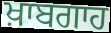
ਖ਼ਾਬਗਾਹ